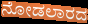
ನೋಡಲಾರದ